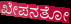
ಖೇಪನತೋ